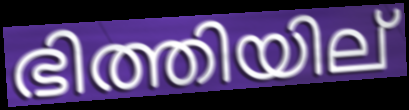
ഭിത്തിയില്